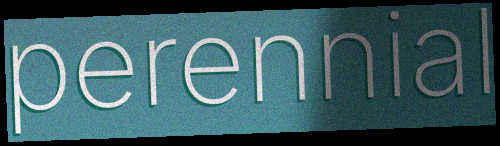
perennial